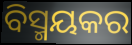
ବିସ୍ମୟକର